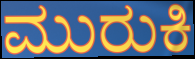
ಮುರುಕಿ